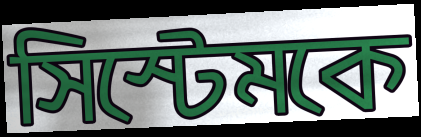
সিস্টেমকে